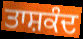
ਤਾਸ਼ਕੰਦ